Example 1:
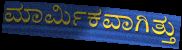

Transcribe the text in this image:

ಮಾರ್ಮಿಕವಾಗಿತ್ತು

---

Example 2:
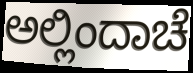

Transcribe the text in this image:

ಅಲ್ಲಿಂದಾಚೆ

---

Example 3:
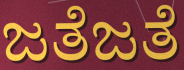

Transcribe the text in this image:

ಜತೆಜತೆ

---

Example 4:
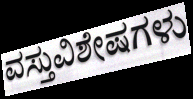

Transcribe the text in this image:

ವಸ್ತುವಿಶೇಷಗಳು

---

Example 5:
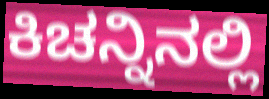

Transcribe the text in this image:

ಕಿಚನ್ನಿನಲ್ಲಿ